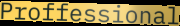
Proffessional